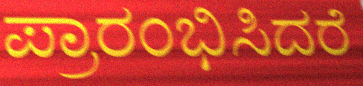
ಪ್ರಾರಂಭಿಸಿದರೆ